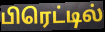
பிரெட்டில்